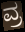
ವ್ರ